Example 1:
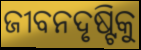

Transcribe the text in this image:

ଜୀବନଦୃଷ୍ଟିକୁ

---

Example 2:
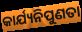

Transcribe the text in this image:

କାର୍ଯ୍ୟନିପୁଣତା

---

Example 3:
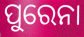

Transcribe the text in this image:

ପୁରେନା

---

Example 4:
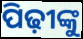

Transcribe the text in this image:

ପିଢ଼ୀଙ୍କୁ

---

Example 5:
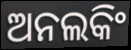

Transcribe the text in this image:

ଅନଲକିଂ